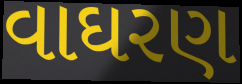
વાઘરણ